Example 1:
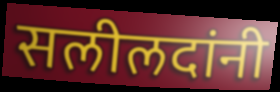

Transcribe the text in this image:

सलीलदांनी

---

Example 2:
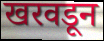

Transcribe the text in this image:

खरवडून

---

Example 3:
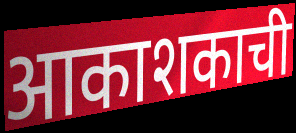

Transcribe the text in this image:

आकाशकाची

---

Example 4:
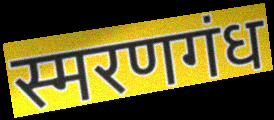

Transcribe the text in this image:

स्मरणगंध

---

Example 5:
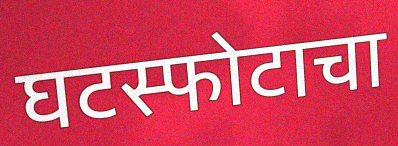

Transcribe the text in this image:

घटस्फोटाचा